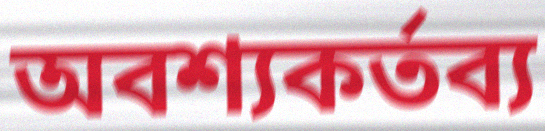
অবশ্যকর্তব্য